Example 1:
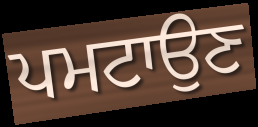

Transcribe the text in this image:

ਪਮਟਾਉਣ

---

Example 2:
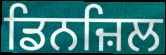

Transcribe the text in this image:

ਡਿਨਜ਼ਿਲ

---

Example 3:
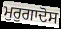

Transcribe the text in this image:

ਮੁਰੁਗਾਦੋਸ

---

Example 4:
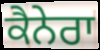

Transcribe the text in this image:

ਕੈਨੇਰਾ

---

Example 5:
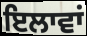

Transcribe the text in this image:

ਇਲਾਵਾਂ